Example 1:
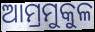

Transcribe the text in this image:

ଆମ୍ରମୁକୁଳ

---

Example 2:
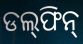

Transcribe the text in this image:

ଡଲ୍‍ଫିନ୍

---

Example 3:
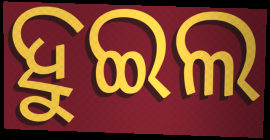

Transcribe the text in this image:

ହୁଇଲ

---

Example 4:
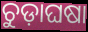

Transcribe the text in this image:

ଚୁଡ଼ାଘଷା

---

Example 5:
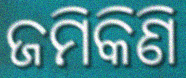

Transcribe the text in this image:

ଜମିକିଣି